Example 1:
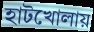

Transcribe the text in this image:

হাটখোলায়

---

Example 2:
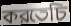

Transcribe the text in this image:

করতেচি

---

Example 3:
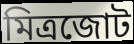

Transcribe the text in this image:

মিত্রজোট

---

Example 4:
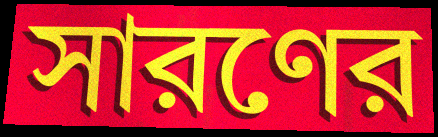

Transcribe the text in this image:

সারণের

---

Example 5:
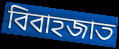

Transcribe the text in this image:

বিবাহজাত